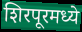
शिरपूरमध्ये